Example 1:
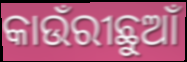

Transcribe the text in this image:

କାଉଁରୀଛୁଆଁ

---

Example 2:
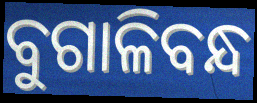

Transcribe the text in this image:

ବୁଗାଳିବନ୍ଧ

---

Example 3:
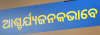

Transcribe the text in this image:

ଆଶ୍ଚର୍ଯ୍ୟଜନକଭାବେ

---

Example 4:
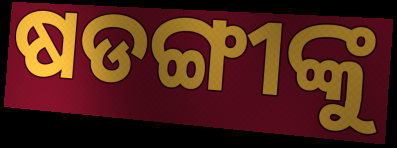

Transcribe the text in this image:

ଷଡଙ୍ଗୀଙ୍କୁ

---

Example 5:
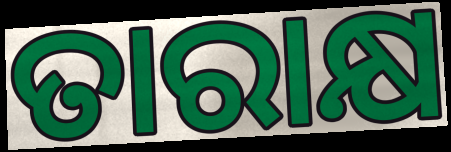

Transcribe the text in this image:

ତାରାକ୍ଷ